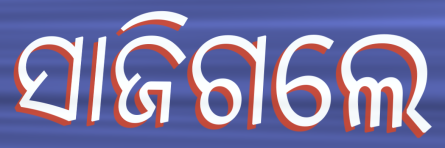
ସାଜିଗଲେ